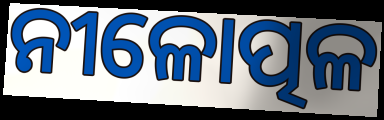
ନୀଳୋତ୍ପଳ